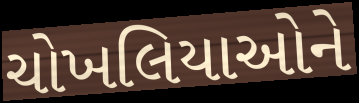
ચોખલિયાઓને